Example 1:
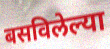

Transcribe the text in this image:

बसविलेल्या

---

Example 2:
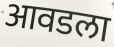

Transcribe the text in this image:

आवडला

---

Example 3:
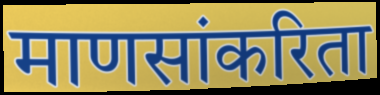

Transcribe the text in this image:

माणसांकरिता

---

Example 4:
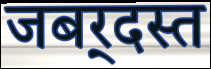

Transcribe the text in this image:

जबर्दस्त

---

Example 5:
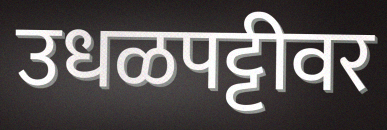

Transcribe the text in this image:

उधळपट्टीवर